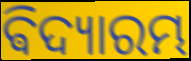
ଵିଦ୍ୟାରମ୍ଭ